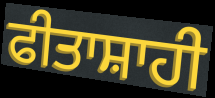
ਫੀਤਾਸ਼ਾਹੀ